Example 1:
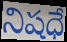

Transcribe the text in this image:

నిషధే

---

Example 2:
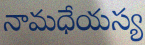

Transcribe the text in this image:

నామధేయస్య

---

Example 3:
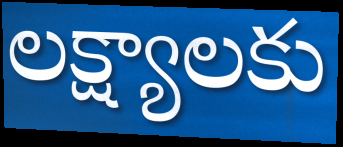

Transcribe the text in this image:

లక్ష్యాలకు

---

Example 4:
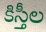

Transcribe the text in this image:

కిస్తీల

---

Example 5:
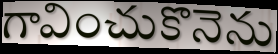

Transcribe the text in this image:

గావించుకొనెను